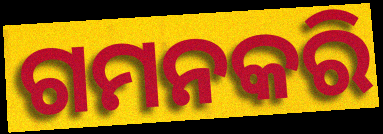
ଗମନକରି